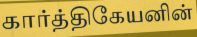
கார்த்திகேயனின்